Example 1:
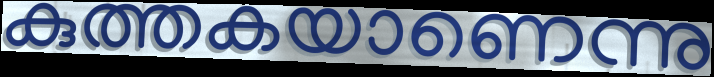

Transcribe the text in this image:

കുത്തകയാണെന്നു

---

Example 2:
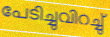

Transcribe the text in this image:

പേടിച്ചുവിറച്ചു്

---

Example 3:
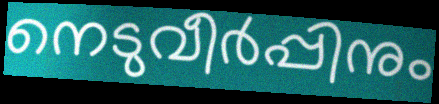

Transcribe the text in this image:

നെടുവീർപ്പിനും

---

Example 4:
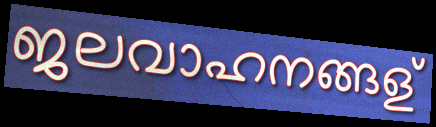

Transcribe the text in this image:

ജലവാഹനങ്ങള്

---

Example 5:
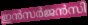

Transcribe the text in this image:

ഇൻസർജൻസി